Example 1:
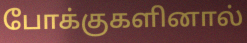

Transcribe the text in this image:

போக்குகளினால்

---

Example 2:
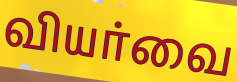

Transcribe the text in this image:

வியர்வை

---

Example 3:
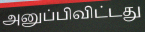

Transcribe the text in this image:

அனுப்பிவிட்டது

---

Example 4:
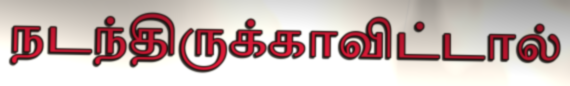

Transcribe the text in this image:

நடந்திருக்காவிட்டால்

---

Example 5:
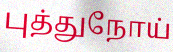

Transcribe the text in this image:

புத்துநோய்